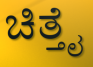
ಚಿತ್ತೈ